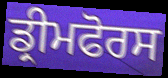
ਡ੍ਰੀਮਫੋਰਸ